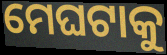
ମେଘଟାକୁ